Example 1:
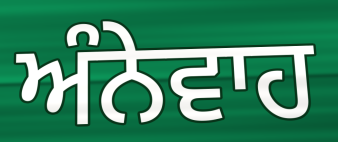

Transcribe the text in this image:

ਅੰਨੇਵਾਹ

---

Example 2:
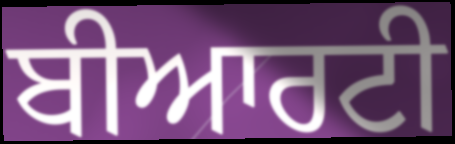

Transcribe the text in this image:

ਬੀਆਰਟੀ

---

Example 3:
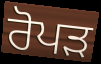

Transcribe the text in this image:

ਰੋਪਡ਼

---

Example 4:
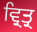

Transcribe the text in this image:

ਵ੍ਰਿਤ੍ਰ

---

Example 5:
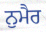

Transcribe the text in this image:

ਨੁਮੈਰ